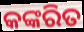
କଙ୍କରିତ